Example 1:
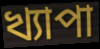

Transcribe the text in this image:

খ্যাপা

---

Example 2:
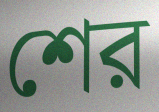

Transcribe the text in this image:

শের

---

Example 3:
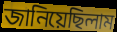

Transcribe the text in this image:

জানিয়েছিলাম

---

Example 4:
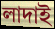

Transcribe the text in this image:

লাদাই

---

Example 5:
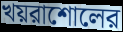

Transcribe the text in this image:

খয়রাশোলের